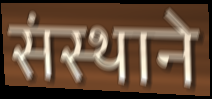
संस्थाने